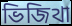
ভিজিথা